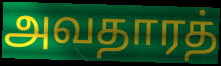
அவதாரத்